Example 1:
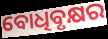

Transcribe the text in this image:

ବୋଧିବୃକ୍ଷର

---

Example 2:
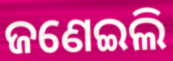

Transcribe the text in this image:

ଜଣେଇଲି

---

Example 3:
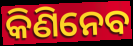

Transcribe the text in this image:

କିଣିନେବ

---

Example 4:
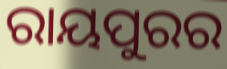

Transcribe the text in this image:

ରାୟପୁରର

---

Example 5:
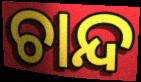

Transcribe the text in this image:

ଚାନ୍ଦ